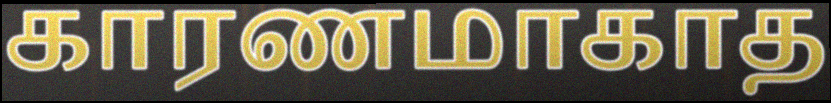
காரணமாகாத